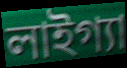
লাইগ্যা